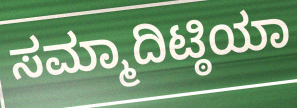
ಸಮ್ಮಾದಿಟ್ಠಿಯಾ